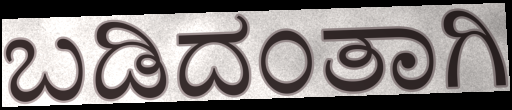
ಬಡಿದಂತಾಗಿ